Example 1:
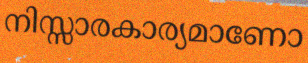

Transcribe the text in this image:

നിസ്സാരകാര്യമാണോ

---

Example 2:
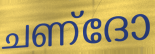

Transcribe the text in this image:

ചണ്ദോ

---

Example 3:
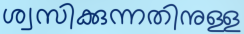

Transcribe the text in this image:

ശ്വസിക്കുന്നതിനുള്ള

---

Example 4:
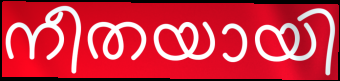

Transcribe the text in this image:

നീതയായി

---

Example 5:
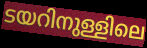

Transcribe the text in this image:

ടയറിനുള്ളിലെ